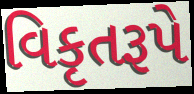
વિકૃતરૂપે